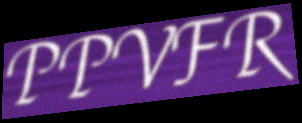
PPVFR